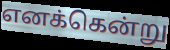
எனக்கென்று